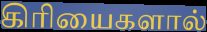
கிரியைகளால்